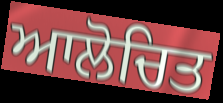
ਆਲੋਚਿਤ